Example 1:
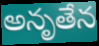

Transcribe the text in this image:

అనృతేన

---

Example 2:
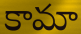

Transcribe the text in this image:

కామా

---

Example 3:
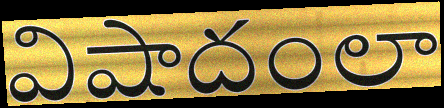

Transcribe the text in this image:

విషాదంలా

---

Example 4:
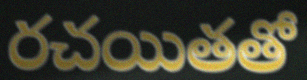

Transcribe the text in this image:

రచయితతో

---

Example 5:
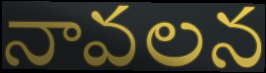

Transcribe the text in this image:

నావలన